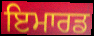
ਇਮਾਰਡ